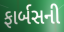
ફાર્બસની